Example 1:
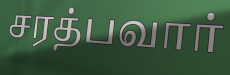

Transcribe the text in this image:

சரத்பவார்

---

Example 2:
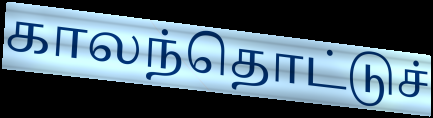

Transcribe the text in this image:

காலந்தொட்டுச்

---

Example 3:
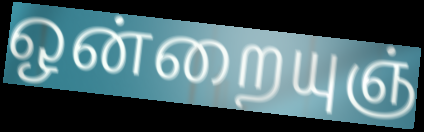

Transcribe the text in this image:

ஒன்றையுஞ்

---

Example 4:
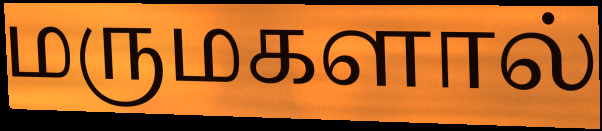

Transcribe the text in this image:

மருமகளால்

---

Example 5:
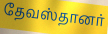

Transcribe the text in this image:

தேவஸ்தானர்